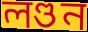
লণ্ডন